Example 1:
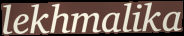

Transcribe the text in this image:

lekhmalika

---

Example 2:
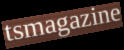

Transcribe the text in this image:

tsmagazine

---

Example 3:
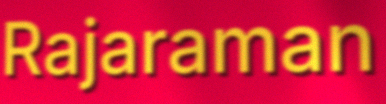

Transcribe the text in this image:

Rajaraman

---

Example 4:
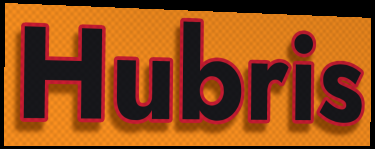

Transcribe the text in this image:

Hubris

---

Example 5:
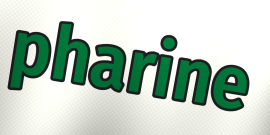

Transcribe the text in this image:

pharine